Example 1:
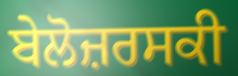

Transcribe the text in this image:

ਬੇਲੋਜ਼ਰਸਕੀ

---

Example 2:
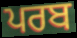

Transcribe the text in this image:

ਪਰਬ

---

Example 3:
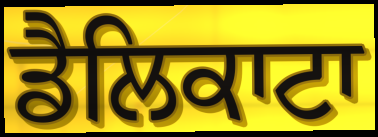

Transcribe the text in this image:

ਡੈਲਿਕਾਟਾ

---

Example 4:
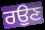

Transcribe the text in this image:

ਰਉਣ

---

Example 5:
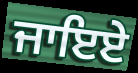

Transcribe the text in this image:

ਜਾਇਏ